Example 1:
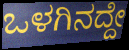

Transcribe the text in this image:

ಒಳಗಿನದ್ದೇ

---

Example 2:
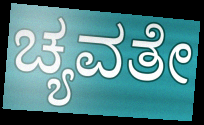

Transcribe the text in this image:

ಚ್ಯವತೇ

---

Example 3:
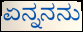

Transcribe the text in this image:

ಏನ್ನನನು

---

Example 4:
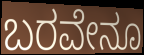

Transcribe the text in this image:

ಬರವೇನೂ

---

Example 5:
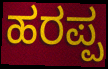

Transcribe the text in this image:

ಹರಪ್ಪ